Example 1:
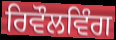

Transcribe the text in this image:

ਰਿਵੌਲਵਿੰਗ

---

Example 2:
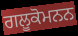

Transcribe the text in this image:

ਗਲੂਕੋਮਨਨ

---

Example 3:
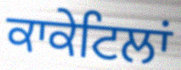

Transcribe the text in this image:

ਕਾਕੇਟਿਲਾਂ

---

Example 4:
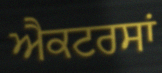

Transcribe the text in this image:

ਐਕਟਰਸਾਂ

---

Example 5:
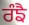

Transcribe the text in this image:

ਰੰਙੈ